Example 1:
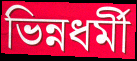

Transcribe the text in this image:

ভিন্নধৰ্মী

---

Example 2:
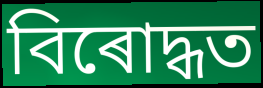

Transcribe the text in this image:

বিৰোদ্ধত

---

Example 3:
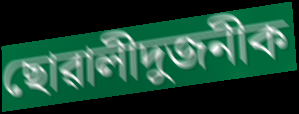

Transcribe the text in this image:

ছোৱালীদুজনীক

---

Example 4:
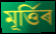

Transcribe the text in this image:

মূৰ্ত্তিৰ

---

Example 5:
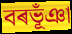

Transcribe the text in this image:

বৰভূঁঞা